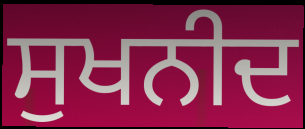
ਸੁਖਨੀਦ